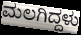
ಮಲಗಿದ್ದಳು